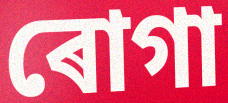
ৰোগা